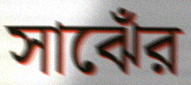
সাঝেঁর